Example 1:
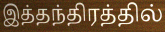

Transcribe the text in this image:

இத்தந்திரத்தில்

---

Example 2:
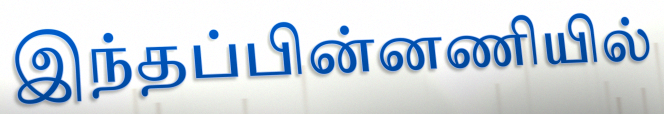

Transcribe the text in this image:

இந்தப்பின்னணியில்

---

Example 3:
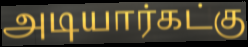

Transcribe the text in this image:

அடியார்கட்கு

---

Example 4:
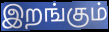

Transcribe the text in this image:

இறங்கும்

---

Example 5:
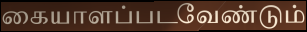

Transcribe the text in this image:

கையாளப்படவேண்டும்